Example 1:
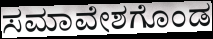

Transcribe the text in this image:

ಸಮಾವೇಶಗೊಂಡ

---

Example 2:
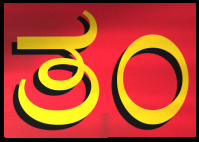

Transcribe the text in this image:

ತಂ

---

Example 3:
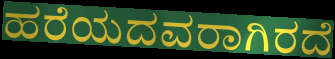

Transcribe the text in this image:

ಹರೆಯದವರಾಗಿರದೆ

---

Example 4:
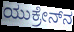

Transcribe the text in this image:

ಯುಕ್ರೇನ್‌ನ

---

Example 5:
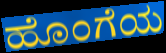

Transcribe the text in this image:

ಹೊಂಗೆಯ